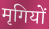
मृगियों